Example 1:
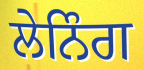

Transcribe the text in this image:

ਲੇਨਿੰਗ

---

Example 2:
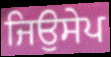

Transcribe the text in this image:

ਜਿਉਸੇਪ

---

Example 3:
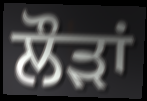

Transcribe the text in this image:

ਲੌੜਾਂ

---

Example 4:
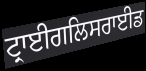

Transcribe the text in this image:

ਟ੍ਰਾਈਗਲਿਸਰਾਈਡ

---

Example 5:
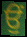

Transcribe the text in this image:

ਉਂ